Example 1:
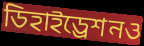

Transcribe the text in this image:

ডিহাইড্রেশনও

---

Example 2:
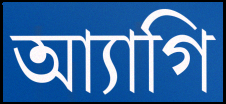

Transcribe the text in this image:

আ্যাগি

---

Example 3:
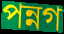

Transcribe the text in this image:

পন্নগ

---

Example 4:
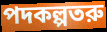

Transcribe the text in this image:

পদকল্পতরু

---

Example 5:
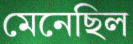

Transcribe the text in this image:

মেনেছিল